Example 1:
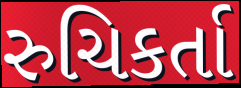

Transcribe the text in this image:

રુચિકર્તા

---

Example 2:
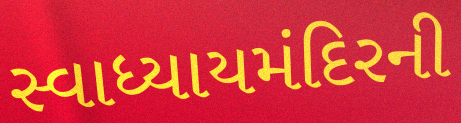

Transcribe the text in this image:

સ્વાધ્યાયમંદિરની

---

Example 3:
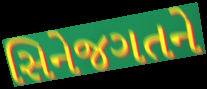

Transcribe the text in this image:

સિનેજગતને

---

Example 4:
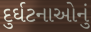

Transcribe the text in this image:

દુર્ઘટનાઓનું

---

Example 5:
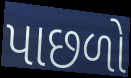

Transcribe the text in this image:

પાછળો